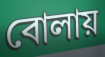
বোলায়